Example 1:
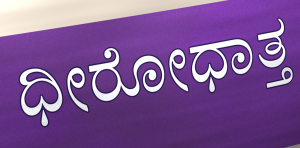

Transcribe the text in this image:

ಧೀರೋಧಾತ್ತ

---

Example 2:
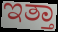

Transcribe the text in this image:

ಇತ್ತಾ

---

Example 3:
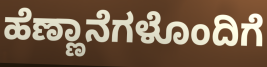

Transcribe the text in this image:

ಹೆಣ್ಣಾನೆಗಳೊಂದಿಗೆ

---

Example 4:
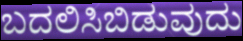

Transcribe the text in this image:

ಬದಲಿಸಿಬಿಡುವುದು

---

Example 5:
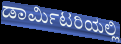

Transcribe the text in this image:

ಡಾರ್ಮಿಟರಿಯಲ್ಲಿ